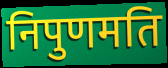
निपुणमति